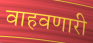
वाहवणारी